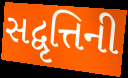
સદ્વૃત્તિની